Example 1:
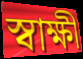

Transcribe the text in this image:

স্বাক্ষী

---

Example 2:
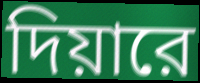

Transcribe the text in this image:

দিয়ারে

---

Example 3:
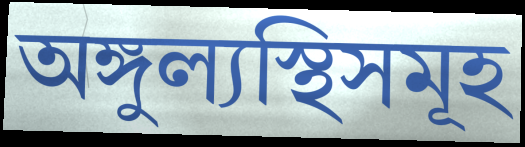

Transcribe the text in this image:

অঙ্গুল্যস্থিসমূহ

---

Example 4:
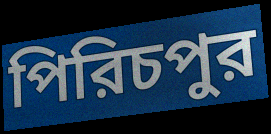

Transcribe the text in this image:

পিরিচপুর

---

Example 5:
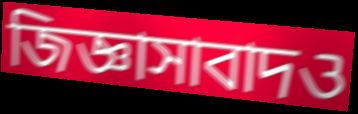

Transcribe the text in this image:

জিজ্ঞাসাবাদও